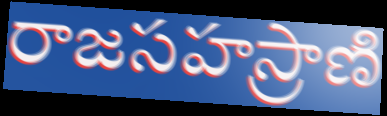
రాజసహస్రాణి